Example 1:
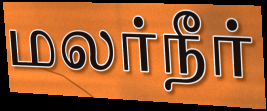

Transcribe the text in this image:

மலர்நீர்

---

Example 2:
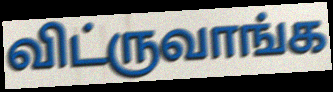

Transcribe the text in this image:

விட்ருவாங்க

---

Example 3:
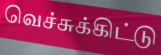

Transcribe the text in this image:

வெச்சுக்கிட்டு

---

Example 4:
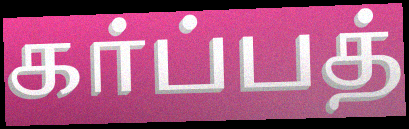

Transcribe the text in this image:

கர்ப்பத்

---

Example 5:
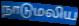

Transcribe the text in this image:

நாடுமலிய